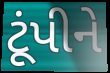
ટૂંપીને